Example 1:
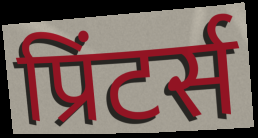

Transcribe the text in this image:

प्रिंटर्स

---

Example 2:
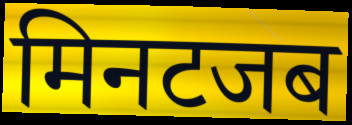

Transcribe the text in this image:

मिनटजब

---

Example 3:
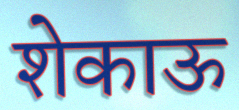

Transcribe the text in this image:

शेकाऊ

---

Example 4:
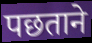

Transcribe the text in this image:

पछताने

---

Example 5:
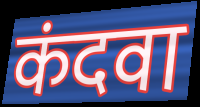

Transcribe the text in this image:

कंदवा